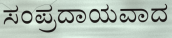
ಸಂಪ್ರದಾಯವಾದ